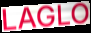
LAGLO